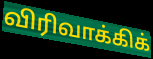
விரிவாக்கிக்